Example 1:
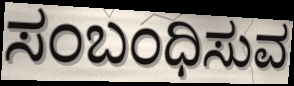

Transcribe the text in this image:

ಸಂಬಂಧಿಸುವ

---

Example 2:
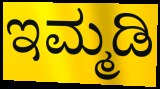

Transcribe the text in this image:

ಇಮ್ಮಡಿ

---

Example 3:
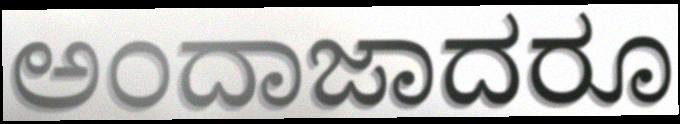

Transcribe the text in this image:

ಅಂದಾಜಾದರೂ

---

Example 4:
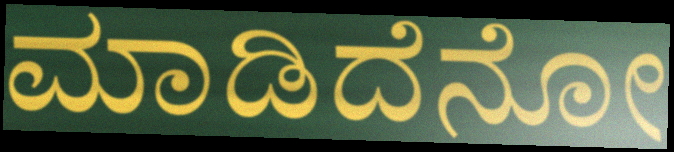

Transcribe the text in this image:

ಮಾಡಿದೆನೋ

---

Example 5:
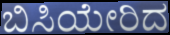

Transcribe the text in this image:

ಬಿಸಿಯೇರಿದ